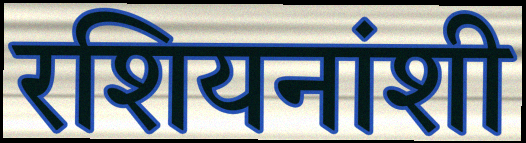
रशियनांशी